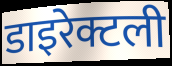
डाइरेक्टली